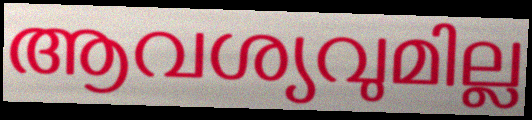
ആവശ്യവുമില്ല